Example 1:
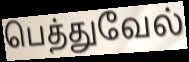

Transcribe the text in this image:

பெத்துவேல்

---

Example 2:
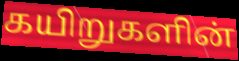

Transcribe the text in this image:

கயிறுகளின்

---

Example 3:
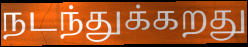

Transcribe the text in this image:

நடந்துக்கறது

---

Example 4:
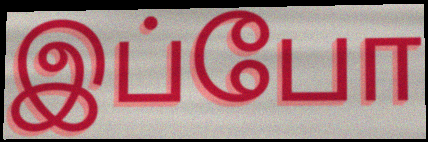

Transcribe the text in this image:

இப்போ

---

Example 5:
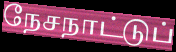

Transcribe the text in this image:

நேசநாட்டுப்